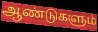
ஆண்டுகளும்